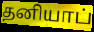
தனியாப்